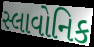
સ્લાવોનિક